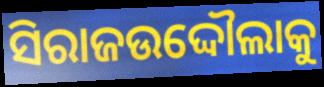
ସିରାଜଉଦ୍ଦୌଲାକୁ